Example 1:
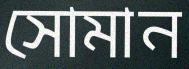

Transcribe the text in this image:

সোমান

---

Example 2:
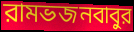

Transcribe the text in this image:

রামভজনবাবুর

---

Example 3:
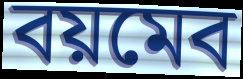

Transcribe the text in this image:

বয়মেব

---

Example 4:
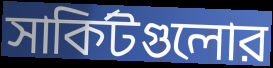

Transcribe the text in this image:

সার্কিটগুলোর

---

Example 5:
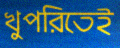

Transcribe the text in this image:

খুপরিতেই